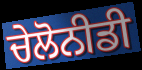
ਚੇਲੋਨੀਡੀ